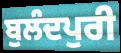
ਬੁਲੰਦਪੁਰੀ